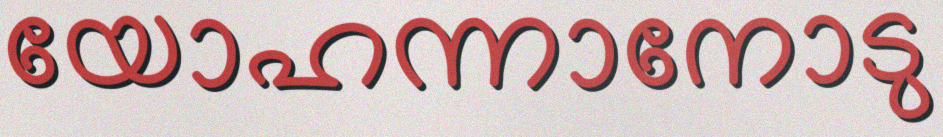
യോഹന്നാനോടു